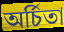
অৰ্চিতা